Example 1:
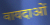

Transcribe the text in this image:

वायदाओं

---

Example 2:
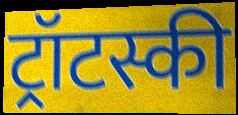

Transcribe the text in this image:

ट्रॉटस्की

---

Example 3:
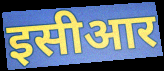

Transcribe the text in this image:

इसीआर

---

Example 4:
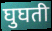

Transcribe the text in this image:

घुघती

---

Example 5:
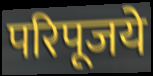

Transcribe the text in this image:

परिपूजये